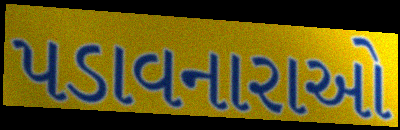
પડાવનારાઓ